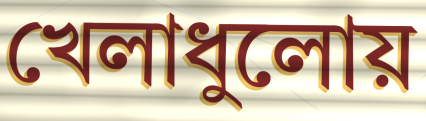
খেলাধুলোয়